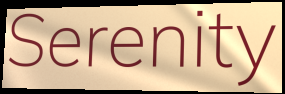
Serenity